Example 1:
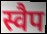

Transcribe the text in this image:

स्वैप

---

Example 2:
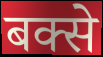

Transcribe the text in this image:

बक्से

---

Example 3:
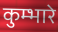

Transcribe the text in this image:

कुम्भारे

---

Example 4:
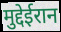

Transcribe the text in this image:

मुद्देईरान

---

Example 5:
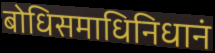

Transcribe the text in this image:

बोधिसमाधिनिधानं